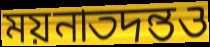
ময়নাতদন্তও